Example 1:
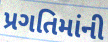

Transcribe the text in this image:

પ્રગતિમાંની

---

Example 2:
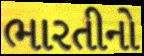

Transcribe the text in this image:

ભારતીનો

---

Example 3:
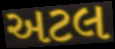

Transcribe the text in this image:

અટલ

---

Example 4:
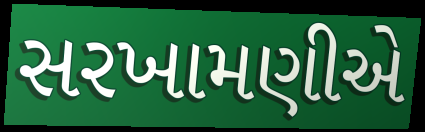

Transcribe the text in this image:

સરખામણીએ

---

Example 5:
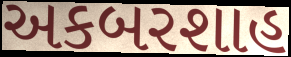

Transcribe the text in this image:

અકબરશાહ